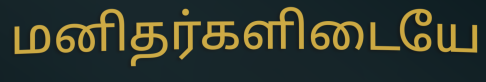
மனிதர்களிடையே